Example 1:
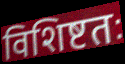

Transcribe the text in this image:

विशिष्टतः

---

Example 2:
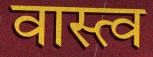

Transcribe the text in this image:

वास्त्व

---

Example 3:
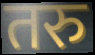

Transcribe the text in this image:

तरु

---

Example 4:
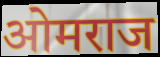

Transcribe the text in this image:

ओमराज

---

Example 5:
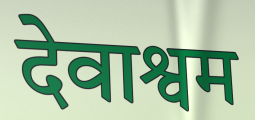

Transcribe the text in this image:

देवाश्वम